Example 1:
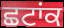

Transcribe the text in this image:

ਛਟਾਂਕ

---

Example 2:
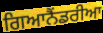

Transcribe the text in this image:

ਗਿਆਨੈਂਡਰੀਆ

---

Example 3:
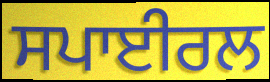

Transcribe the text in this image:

ਸਪਾਈਰਲ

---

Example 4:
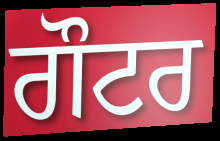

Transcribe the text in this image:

ਗੌਟਰ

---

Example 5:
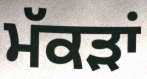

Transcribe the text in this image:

ਮੱਕੜਾਂ